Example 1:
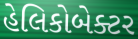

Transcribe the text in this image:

હેલિકોબેક્ટર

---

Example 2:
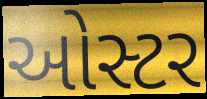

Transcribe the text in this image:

ઓસ્ટર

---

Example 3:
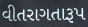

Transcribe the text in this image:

વીતરાગતારૂપ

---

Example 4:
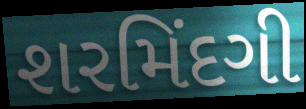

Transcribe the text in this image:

શરમિંદગી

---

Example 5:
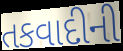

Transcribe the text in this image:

તકવાદીની